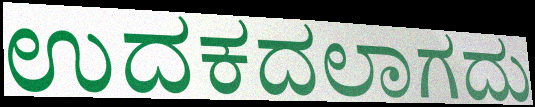
ಉದಕದಲಾಗದು